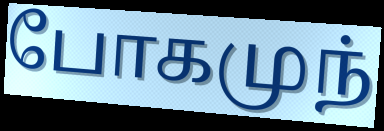
போகமுந்